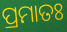
ପ୍ରମାତଃ